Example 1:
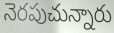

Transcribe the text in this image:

నెరపుచున్నారు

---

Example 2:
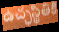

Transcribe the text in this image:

ఉచ్ఛస్థితికి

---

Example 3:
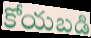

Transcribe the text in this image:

కోయబడి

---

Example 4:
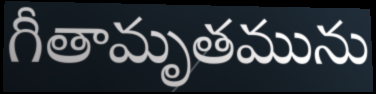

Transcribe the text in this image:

గీతామృతమును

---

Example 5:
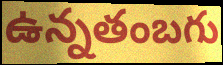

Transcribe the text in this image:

ఉన్నతంబగు